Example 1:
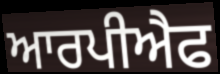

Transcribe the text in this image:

ਆਰਪੀਐਫ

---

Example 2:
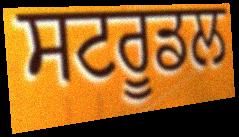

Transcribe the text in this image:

ਸਟਰੂਡਲ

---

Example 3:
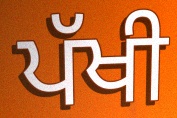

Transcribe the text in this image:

ਪੱਖੀ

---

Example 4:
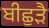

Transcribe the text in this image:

ਬੀਛੁੜੈ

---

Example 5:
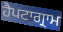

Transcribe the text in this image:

ਹੈਪਟਾਗ੍ਰਾਮ